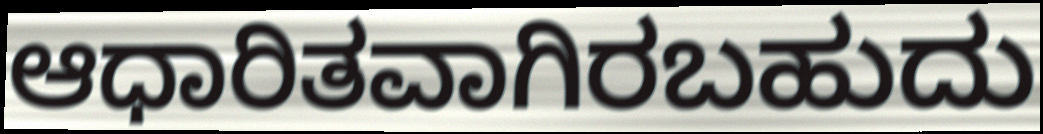
ಆಧಾರಿತವಾಗಿರಬಹುದು